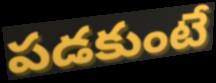
పడకుంటే